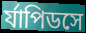
র্যাপিডসে